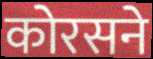
कोरसने